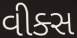
વીક્સ